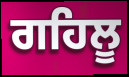
ਗਹਿਲੂ